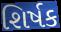
શિર્ષક